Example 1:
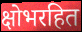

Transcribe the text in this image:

क्षोभरहित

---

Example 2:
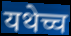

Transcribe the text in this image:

यथेच्च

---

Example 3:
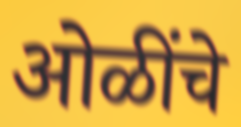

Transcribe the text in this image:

ओळींचे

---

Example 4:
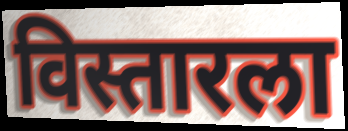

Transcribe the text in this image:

विस्तारला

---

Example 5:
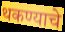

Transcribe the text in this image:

थकण्याचे